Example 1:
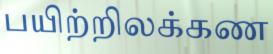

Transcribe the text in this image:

பயிற்றிலக்கண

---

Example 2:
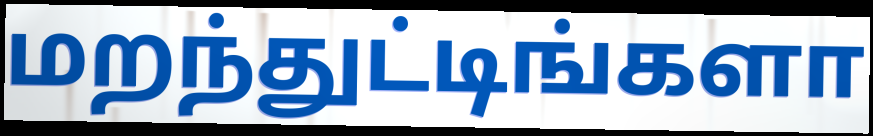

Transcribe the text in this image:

மறந்துட்டிங்களா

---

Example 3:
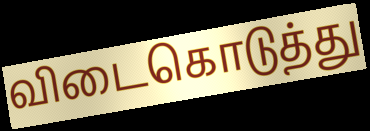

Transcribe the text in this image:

விடைகொடுத்து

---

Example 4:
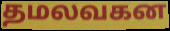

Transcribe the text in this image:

தமலவகன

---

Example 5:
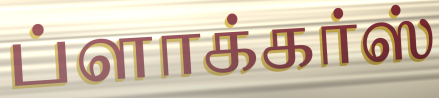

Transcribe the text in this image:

ப்ளாக்கர்ஸ்